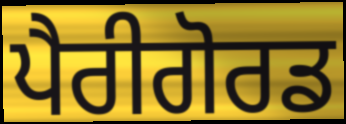
ਪੈਰੀਗੋਰਡ